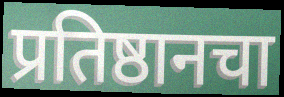
प्रतिष्ठानचा